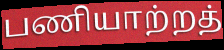
பணியாற்றத்